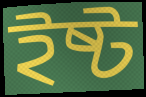
ইষ্ট